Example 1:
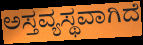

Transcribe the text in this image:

ಅಸ್ತವ್ಯಸ್ಥವಾಗಿದೆ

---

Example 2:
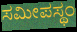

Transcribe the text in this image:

ಸಮೀಪಸ್ಥಂ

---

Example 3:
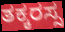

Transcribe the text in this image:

ತಕ್ಕರಸ್ಸ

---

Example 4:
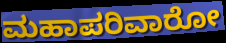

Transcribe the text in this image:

ಮಹಾಪರಿವಾರೋ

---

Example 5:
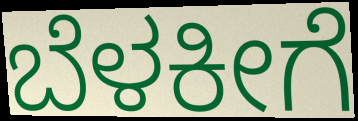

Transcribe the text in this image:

ಬೆಳಕೀಗೆ